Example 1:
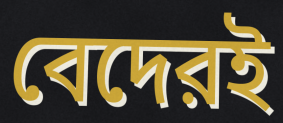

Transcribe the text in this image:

বেদেরই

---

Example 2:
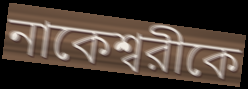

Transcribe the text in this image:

নাকেশ্বরীকে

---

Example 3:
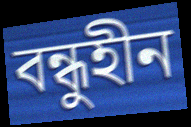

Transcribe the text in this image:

বন্ধুহীন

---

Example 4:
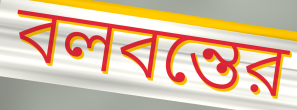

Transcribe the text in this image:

বলবন্তের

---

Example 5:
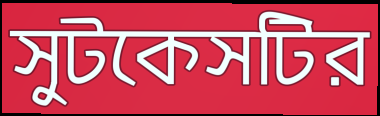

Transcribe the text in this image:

সুটকেসটির